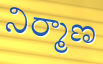
నిర్మాణ